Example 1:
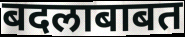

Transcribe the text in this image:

बदलाबाबत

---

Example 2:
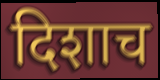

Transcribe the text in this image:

दिशाच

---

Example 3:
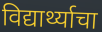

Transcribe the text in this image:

विद्यार्थ्याचा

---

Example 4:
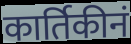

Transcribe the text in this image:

कार्तिकीनं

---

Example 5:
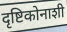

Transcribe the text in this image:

दृष्टिकोनाशी